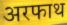
अरफाथ